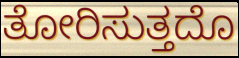
ತೋರಿಸುತ್ತದೊ